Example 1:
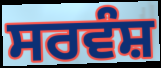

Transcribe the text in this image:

ਸਰਵੰਸ਼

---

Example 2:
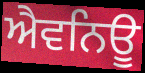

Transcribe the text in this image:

ਐਵਨਿਊ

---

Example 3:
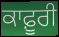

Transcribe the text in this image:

ਕਾਫ਼ੂਰੀ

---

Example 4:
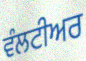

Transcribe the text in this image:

ਵੰਲਟੀਅਰ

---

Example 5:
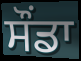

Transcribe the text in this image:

ਸੌਂਡਾ